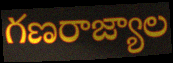
గణరాజ్యాల